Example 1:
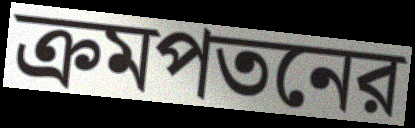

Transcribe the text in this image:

ক্রমপতনের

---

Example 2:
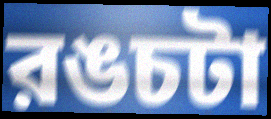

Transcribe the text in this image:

রঙচটা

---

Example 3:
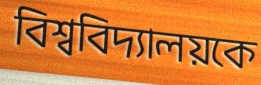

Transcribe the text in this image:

বিশ্ববিদ্যালয়কে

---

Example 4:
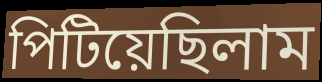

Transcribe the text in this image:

পিটিয়েছিলাম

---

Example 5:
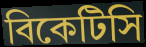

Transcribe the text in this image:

বিকেটিসি